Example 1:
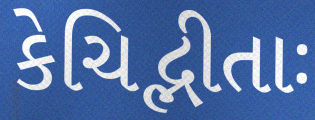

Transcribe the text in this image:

કેચિદ્ભીતાઃ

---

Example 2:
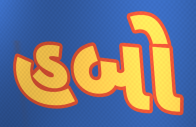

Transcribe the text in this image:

હબો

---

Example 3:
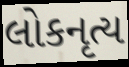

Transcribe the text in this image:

લોકનૃત્ય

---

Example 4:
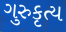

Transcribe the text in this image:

ગુરુકૃત્ય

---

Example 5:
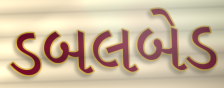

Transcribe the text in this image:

ડબલબેડ